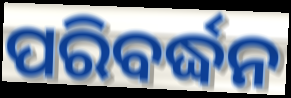
ପରିବର୍ଦ୍ଧନ